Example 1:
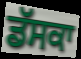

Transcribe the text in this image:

ਡੱਸਕਾ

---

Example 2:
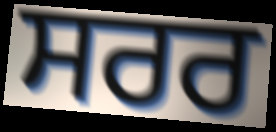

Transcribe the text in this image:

ਸਰਰ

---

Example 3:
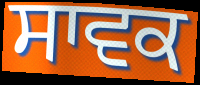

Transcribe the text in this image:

ਸਾਵਕ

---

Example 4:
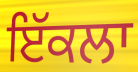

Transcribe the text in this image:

ਇੱਕਲਾ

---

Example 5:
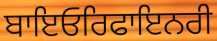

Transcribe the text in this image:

ਬਾਇਓਰਿਫਾਇਨਰੀ